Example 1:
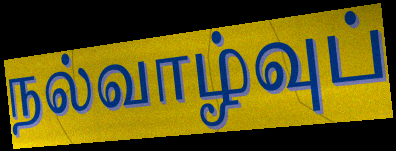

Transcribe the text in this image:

நல்வாழ்வுப்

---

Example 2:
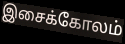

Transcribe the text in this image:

இசைக்கோலம்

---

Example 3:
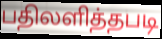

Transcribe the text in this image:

பதிலளித்தபடி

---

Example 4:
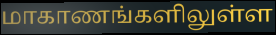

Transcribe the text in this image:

மாகாணங்களிலுள்ள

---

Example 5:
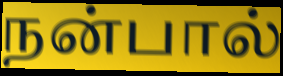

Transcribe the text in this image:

நன்பால்